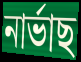
নাৰ্ভাছ